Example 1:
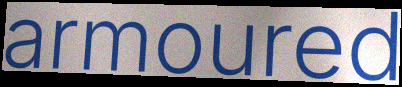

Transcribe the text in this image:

armoured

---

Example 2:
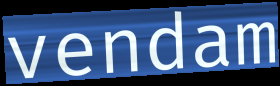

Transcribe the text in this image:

vendam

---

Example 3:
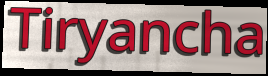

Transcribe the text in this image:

Tiryancha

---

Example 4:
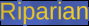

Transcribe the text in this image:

Riparian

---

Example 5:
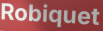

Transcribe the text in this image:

Robiquet